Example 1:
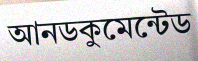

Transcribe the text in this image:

আনডকুমেন্টেড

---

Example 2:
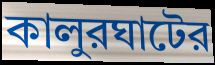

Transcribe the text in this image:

কালুরঘাটের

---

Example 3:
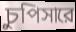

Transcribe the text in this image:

চুপিসারে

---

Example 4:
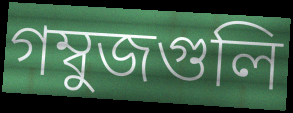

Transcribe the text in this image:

গম্বুজগুলি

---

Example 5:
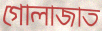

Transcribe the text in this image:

গোলাজাত